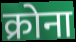
क्रोना